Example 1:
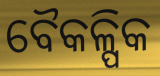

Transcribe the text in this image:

ବୈକଳ୍ପିକ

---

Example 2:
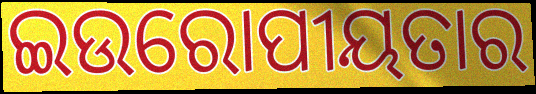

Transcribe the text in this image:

ଇଉରୋପୀୟତାର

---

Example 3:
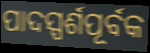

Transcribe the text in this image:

ପାଦସ୍ପର୍ଶପୂର୍ବକ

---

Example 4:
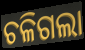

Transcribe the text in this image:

ଚଳିଗଲା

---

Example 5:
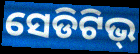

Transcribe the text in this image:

ସେଡିଟିଭ୍